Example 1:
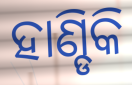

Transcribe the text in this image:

ହାଣ୍ଡିକି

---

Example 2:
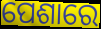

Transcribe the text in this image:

ପେଶାରେ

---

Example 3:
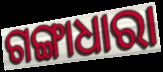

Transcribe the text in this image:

ଗଙ୍ଗାଧାରା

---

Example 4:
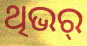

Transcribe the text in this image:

ଥିଭର୍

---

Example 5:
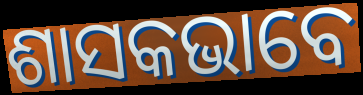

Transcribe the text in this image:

ଶାସକଭାବେ